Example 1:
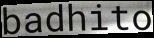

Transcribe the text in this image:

badhito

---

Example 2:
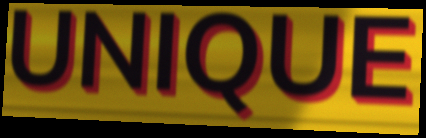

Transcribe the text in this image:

UNIQUE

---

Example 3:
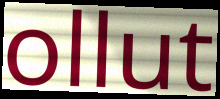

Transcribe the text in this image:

ollut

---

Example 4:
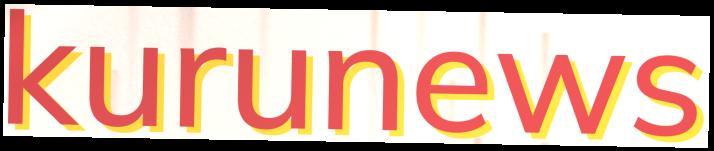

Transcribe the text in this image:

kurunews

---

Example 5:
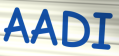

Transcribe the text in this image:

AADI